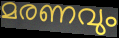
മരണവും